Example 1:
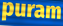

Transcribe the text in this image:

puram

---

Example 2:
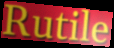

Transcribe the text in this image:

Rutile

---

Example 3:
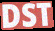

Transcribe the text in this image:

DST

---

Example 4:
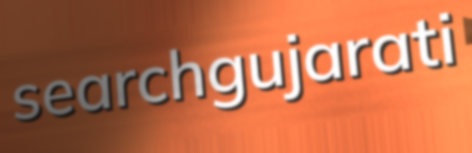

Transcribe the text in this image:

searchgujarati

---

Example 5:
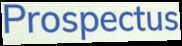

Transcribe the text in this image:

Prospectus